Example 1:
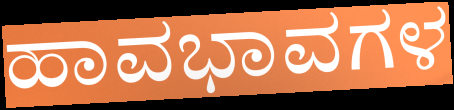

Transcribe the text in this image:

ಹಾವಭಾವಗಳ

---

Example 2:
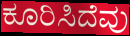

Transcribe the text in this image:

ಕೂರಿಸಿದೆವು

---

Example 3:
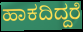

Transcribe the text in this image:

ಹಾಕದಿದ್ದರೆ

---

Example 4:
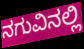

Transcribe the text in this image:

ನಗುವಿನಲ್ಲಿ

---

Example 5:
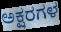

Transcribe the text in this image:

ಅಕ್ಷರಗಳ